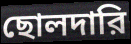
ছোলদারি